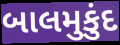
બાલમુકુંદ